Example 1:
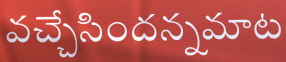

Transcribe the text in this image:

వచ్చేసిందన్నమాట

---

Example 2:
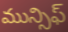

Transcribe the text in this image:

మున్సిఫ్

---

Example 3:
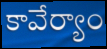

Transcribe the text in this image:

కావేర్యాం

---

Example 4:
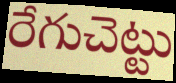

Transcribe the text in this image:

రేగుచెట్టు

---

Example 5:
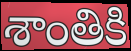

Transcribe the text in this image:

శాంతికి